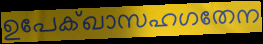
ഉപേക്ഖാസഹഗതേന